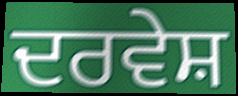
ਦਰਵੇਸ਼